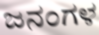
ಜನಂಗಳ